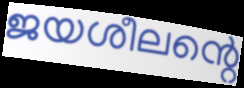
ജയശീലന്റെ